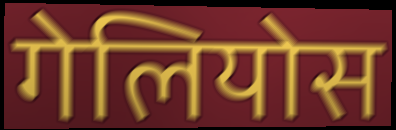
गेलियोस